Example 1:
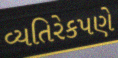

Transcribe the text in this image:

વ્યતિરેકપણે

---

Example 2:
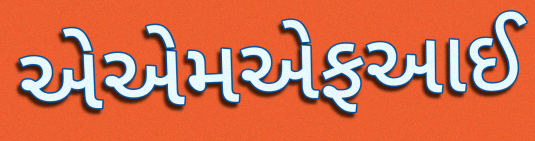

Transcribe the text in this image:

એએમએફઆઈ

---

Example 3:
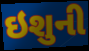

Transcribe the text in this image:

ઇશુની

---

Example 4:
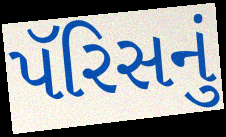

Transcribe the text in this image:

પૅરિસનું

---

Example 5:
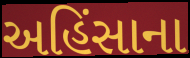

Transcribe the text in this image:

અહિંસાના